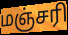
மஞ்சரி